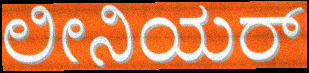
ಲೀನಿಯರ್